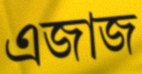
এজাজ